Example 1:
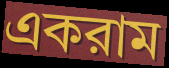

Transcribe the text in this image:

একরাম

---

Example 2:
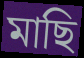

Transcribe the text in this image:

মাছি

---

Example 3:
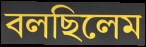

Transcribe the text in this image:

বলছিলেম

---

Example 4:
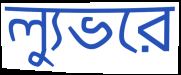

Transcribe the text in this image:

ল্যুভরে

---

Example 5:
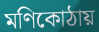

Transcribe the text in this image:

মণিকোঠায়